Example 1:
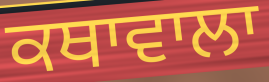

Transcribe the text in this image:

ਕਥਾਵਾਲਾ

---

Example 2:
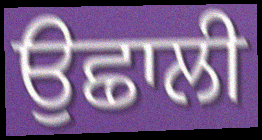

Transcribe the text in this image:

ਉਛਾਲੀ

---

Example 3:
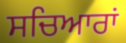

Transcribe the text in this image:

ਸਚਿਆਰਾਂ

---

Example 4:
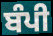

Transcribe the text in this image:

ਬੰਪੀ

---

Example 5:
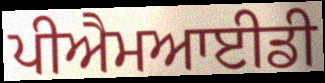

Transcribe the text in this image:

ਪੀਐਮਆਈਡੀ